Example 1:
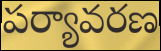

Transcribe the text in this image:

పర్యావరణ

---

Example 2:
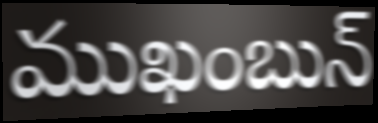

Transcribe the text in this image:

ముఖంబున్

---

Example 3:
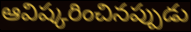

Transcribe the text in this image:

ఆవిష్కరించినప్పుడు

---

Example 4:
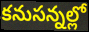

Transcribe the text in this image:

కనుసన్నల్లో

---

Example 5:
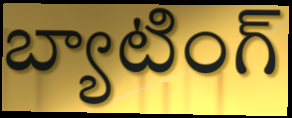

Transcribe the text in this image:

బ్యాటింగ్